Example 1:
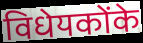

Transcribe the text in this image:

विधेयकोंके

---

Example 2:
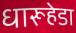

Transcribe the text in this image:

धारूहेडा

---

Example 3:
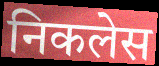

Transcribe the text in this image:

निकलेस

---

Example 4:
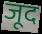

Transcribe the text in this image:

जूद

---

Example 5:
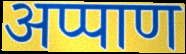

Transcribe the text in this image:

अप्पाण